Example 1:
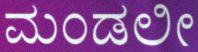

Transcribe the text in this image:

ಮಂಡಲೀ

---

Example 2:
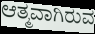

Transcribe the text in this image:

ಆತ್ಮವಾಗಿರುವ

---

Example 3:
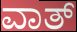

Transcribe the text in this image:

ವಾತ್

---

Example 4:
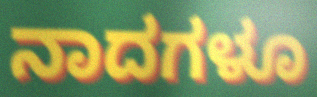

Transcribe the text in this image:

ನಾದಗಳೂ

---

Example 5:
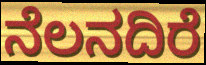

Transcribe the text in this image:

ನೆಲನದಿರೆ